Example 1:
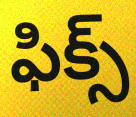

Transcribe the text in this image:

ఫిక్స్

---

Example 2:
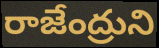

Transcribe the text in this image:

రాజేంద్రుని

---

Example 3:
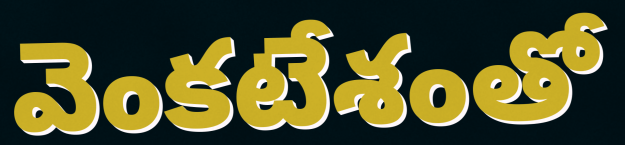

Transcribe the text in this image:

వెంకటేశంతో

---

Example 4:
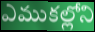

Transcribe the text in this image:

ఎముకల్లోని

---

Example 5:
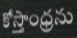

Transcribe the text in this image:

కోస్తాంధ్రను